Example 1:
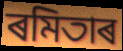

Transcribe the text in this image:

ৰমিতাৰ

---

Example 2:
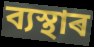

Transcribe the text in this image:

ব্যস্থাৰ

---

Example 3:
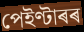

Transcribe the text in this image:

পেইণ্টাৰৰ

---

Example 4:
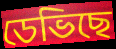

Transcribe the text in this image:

ডেভিছে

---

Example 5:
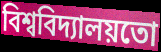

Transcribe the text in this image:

বিশ্ববিদ্যালয়তো